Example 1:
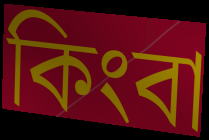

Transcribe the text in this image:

কিংবা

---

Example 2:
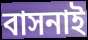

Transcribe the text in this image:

বাসনাই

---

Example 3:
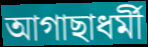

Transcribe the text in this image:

আগাছাধর্মী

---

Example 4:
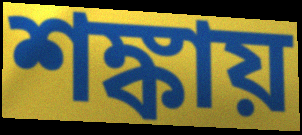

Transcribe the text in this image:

শঙ্কায়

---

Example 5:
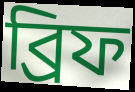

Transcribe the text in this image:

ব্রিফ